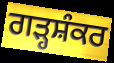
ਗੜ੍ਹਸ਼ੰਕਰ